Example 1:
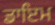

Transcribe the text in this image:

ਡਾਇਮ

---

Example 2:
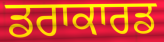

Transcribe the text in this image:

ਡਰਾਕਾਰਡ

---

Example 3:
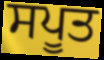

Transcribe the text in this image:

ਸਪੂਤ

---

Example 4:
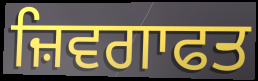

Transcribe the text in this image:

ਜ਼ਿਵਗਾਫਤ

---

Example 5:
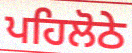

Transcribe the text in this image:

ਪਹਿਲੋਠੇ